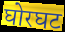
घोरघट